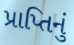
પ્રાપ્‍તિનું